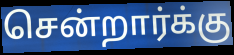
சென்றார்க்கு